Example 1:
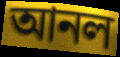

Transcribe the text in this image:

আনল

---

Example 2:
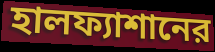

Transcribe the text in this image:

হালফ্যাশানের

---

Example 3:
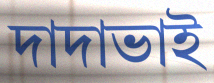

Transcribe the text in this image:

দাদাভাই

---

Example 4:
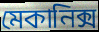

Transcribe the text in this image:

মেকানিক্স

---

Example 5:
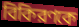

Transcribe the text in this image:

বিকিরণকে